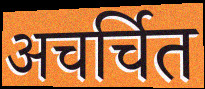
अचर्चित